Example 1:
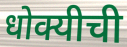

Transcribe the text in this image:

धोक्यीची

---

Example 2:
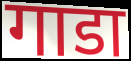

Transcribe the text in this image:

गाडा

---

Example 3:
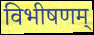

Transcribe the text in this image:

विभीषणम्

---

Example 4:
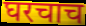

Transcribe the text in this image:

घरचाच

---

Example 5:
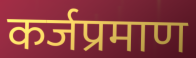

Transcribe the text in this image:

कर्जप्रमाण